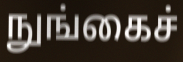
நுங்கைச்